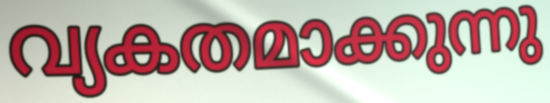
വ്യകതമാക്കുന്നു